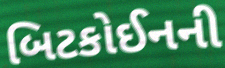
બિટકોઈનની